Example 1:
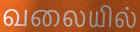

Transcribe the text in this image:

வலையில்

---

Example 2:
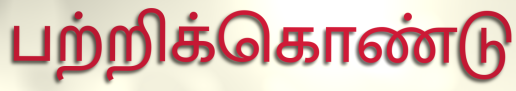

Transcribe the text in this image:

பற்றிக்கொண்டு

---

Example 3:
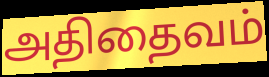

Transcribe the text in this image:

அதிதைவம்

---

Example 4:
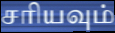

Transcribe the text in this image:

சரியவும்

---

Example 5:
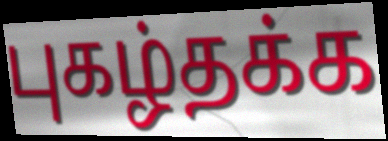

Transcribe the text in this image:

புகழ்தக்க